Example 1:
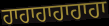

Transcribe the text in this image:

ਹਾਹਾਹਾਹਾਹਾਹਾ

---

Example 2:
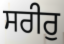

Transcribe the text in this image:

ਸਰੀਰੁ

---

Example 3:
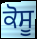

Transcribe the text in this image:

ਕੋਸੂ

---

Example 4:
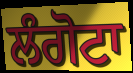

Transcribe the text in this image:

ਲੰਗੋਟਾ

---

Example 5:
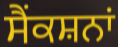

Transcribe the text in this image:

ਸੈਂਕਸ਼ਨਾਂ